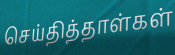
செய்தித்தாள்கள்